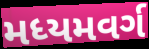
મધ્યમવર્ગ